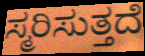
ಸ್ಮರಿಸುತ್ತದೆ